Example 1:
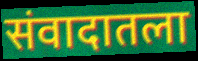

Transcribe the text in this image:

संवादातला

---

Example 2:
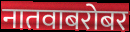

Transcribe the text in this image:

नातवाबरोबर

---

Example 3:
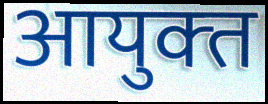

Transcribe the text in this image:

आयुक्‍त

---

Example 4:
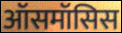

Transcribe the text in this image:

ऑसमॉसिस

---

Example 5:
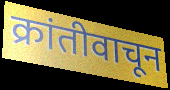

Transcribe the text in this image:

क्रांतीवाचून